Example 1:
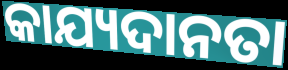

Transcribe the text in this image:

କାଯ୍ୟଦାନତା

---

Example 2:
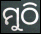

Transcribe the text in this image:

ମୁଠି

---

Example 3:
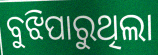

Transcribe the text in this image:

ବୁଝିପାରୁଥିଲା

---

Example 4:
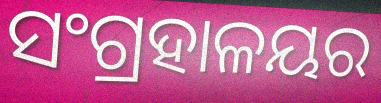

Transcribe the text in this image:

ସଂଗ୍ରହାଳୟର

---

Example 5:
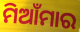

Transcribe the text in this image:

ମିଆଁମାର